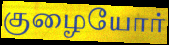
குழையோர்